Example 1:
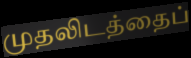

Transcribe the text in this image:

முதலிடத்தைப்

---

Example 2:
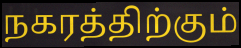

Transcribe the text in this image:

நகரத்திற்கும்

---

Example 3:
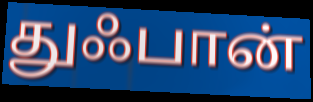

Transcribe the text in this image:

துஃபான்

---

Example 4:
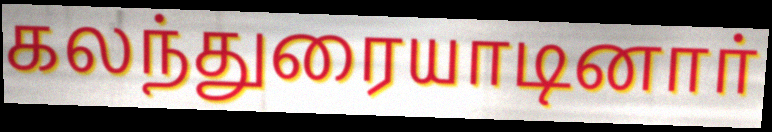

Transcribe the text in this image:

கலந்துரையாடினார்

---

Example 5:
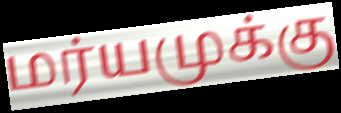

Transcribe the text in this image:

மர்யமுக்கு